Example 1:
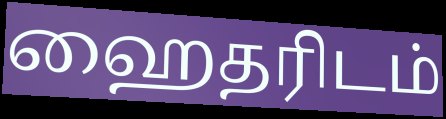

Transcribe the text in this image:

ஹைதரிடம்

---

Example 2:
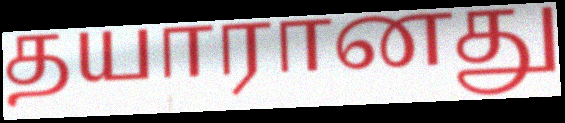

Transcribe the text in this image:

தயாரானது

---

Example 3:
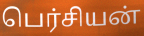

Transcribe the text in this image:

பெர்சியன்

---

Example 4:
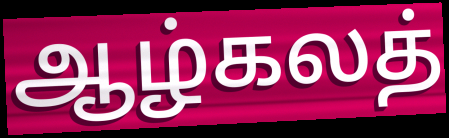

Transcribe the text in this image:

ஆழ்கலத்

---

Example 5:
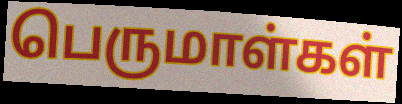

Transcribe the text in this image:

பெருமாள்கள்